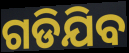
ଗଡିଯିବ